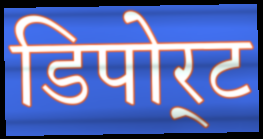
डिपोर्ट